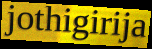
jothigirija